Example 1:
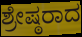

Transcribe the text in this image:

ಶ್ರೇಷ್ಠರಾದ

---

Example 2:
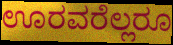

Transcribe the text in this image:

ಊರವರೆಲ್ಲರೂ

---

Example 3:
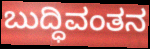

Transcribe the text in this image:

ಬುದ್ಧಿವಂತನ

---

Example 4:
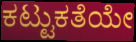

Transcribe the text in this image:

ಕಟ್ಟುಕತೆಯೇ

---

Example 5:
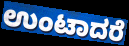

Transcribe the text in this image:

ಉಂಟಾದರೆ